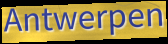
Antwerpen